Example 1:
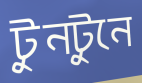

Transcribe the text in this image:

টুনটুনে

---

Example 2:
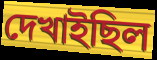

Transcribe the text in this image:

দেখাইছিল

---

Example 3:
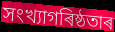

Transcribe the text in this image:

সংখ্যাগৰিষ্ঠতাৰ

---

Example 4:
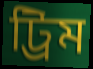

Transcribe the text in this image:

ট্ৰিম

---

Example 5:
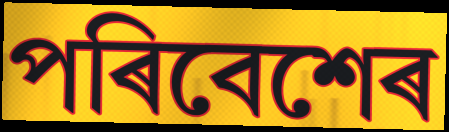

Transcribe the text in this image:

পৰিবেশেৰ